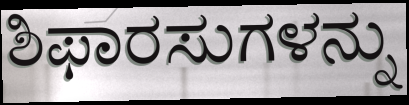
ಶಿಫಾರಸುಗಳನ್ನು